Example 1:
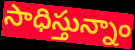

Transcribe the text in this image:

సాధిస్తున్నాం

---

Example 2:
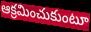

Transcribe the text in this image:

ఆక్రమించుకుంటూ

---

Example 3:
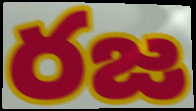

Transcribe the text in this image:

రజ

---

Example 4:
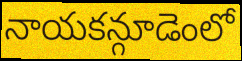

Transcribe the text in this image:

నాయకన్గూడెంలో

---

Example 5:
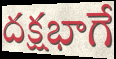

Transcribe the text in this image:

దక్షభాగే